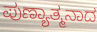
ಪುಣ್ಯಾತ್ಮನಾದ